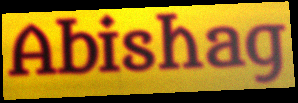
Abishag